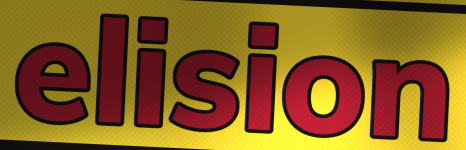
elision